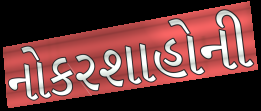
નોકરશાહોની